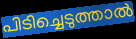
പിടിച്ചെടുത്താൽ